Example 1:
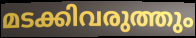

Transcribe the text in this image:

മടക്കിവരുത്തും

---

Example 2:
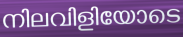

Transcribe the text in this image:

നിലവിളിയോടെ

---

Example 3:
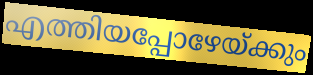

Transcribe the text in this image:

എത്തിയപ്പോഴേയ്ക്കും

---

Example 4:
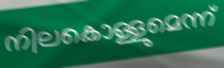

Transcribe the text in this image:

നിലകൊള്ളുമെന്ന്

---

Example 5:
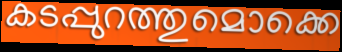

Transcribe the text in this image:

കടപ്പുറത്തുമൊക്കെ